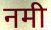
नमी